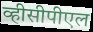
व्हीसीपीएल